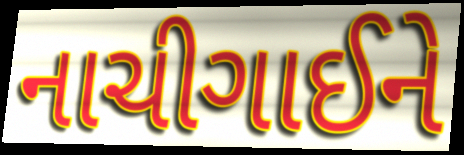
નાચીગાઈને